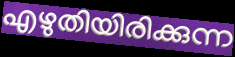
എഴുതിയിരിക്കുന്ന